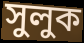
সুলুক